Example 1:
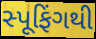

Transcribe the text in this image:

સ્પૂફિંગથી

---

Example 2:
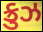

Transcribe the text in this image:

ક્રુઝ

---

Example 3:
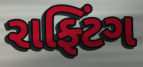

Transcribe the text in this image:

રાફ્ટિંગ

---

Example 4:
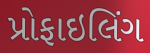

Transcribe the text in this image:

પ્રોફાઇલિંગ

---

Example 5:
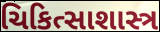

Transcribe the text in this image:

ચિકિત્સાશાસ્ત્ર